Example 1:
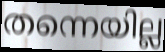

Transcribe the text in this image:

തന്നെയില്ല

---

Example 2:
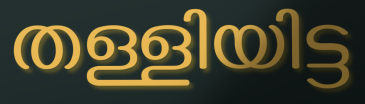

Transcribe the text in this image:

തള്ളിയിട്ട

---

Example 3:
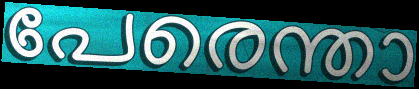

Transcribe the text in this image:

പേരെന്താ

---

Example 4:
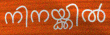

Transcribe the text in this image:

നിനയ്ക്കിൽ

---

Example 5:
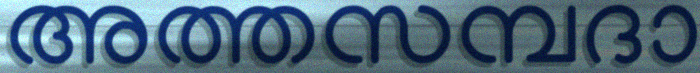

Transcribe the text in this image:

അത്തസമ്പദാ